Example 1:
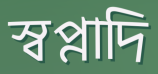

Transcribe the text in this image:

স্বপ্নাদি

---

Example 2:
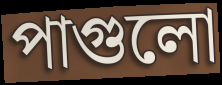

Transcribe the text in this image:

পাগুলো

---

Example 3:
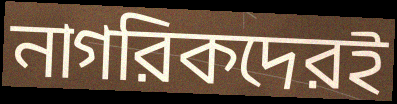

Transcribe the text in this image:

নাগরিকদেরই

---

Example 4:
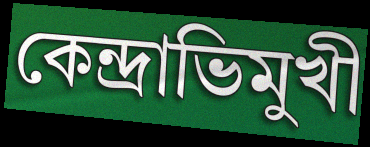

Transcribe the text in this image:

কেন্দ্রাভিমুখী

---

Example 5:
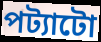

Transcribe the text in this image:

পট্যাটো